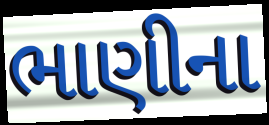
ભાણીના